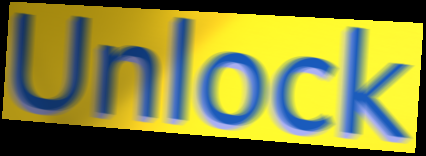
Unlock